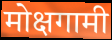
मोक्षगामी